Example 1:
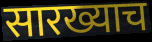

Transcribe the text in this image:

सारख्याच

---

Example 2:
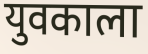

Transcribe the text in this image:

युवकाला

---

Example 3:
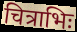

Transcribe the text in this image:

चित्राभिः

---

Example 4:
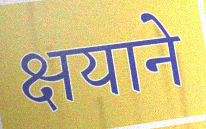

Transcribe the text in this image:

क्षयाने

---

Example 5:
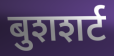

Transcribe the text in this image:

बुशशर्ट